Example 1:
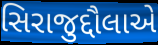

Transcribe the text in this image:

સિરાજુદ્દૌલાએ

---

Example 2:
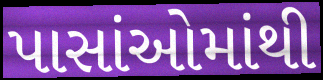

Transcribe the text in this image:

પાસાંઓમાંથી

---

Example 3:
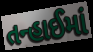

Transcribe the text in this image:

તન્હાઈમાં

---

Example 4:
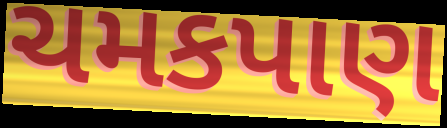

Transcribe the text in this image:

ચમકપાણ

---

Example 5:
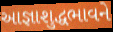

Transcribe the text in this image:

આજ્ઞાશુદ્ધભાવને